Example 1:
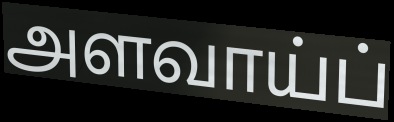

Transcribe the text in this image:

அளவாய்ப்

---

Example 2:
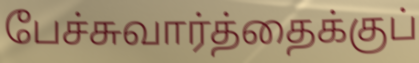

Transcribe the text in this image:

பேச்சுவார்த்தைக்குப்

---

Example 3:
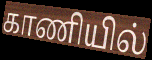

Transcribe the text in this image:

காணியில்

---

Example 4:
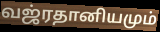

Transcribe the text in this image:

வஜ்ரதானியமும்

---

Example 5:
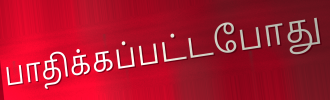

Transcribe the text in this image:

பாதிக்கப்பட்டபோது